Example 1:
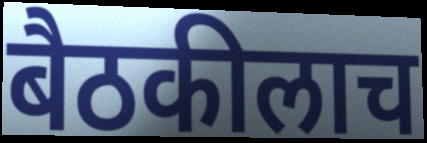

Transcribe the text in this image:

बैठकीलाच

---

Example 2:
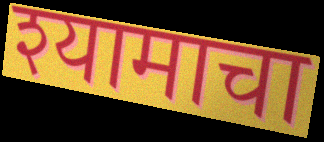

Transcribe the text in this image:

श्यामाचा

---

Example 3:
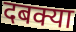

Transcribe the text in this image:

दबक्या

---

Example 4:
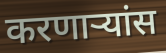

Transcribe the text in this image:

करणाऱ्यांस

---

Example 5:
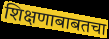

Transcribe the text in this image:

शिक्षणाबाबतचा